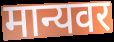
मान्यवर